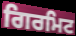
ਗਿਰਮਿਟ